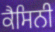
ਕੈਸਿਨੀ